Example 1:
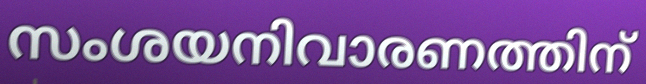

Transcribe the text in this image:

സംശയനിവാരണത്തിന്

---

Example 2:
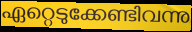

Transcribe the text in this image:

ഏറ്റെടുക്കേണ്ടിവന്നു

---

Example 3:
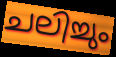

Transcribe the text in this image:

ചലിച്ചും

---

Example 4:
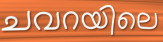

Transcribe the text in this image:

ചവറയിലെ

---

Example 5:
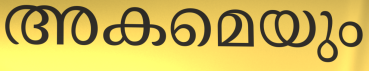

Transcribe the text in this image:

അകമെയും